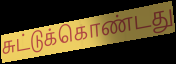
சுட்டுக்கொண்டது